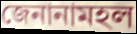
জেনানামহল